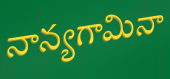
నాన్యగామినా